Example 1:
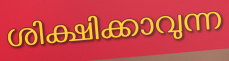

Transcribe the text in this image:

ശിക്ഷിക്കാവുന്ന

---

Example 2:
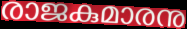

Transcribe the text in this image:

രാജകുമാരനു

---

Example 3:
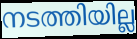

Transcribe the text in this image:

നടത്തിയില്ല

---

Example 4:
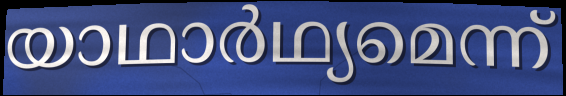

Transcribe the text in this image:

യാഥാർഥ്യമെന്ന്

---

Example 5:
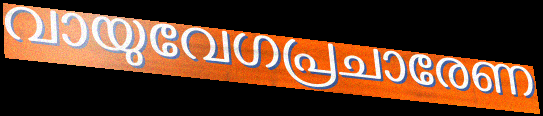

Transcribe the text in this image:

വായുവേഗപ്രചാരേണ